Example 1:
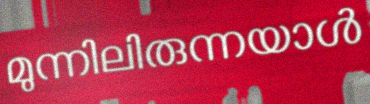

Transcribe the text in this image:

മുന്നിലിരുന്നയാൾ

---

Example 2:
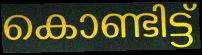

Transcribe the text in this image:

കൊണ്ടിട്ട്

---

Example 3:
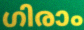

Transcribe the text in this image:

ഗിരാം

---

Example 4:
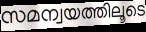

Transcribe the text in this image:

സമന്വയത്തിലൂടെ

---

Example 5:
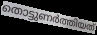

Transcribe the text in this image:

തൊട്ടുണർത്തിയത്